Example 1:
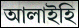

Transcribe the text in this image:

আলাইহি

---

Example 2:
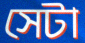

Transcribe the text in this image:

সেটা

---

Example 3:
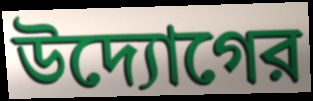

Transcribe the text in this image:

উদ্যোগের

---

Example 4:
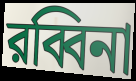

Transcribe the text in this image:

রব্বিনা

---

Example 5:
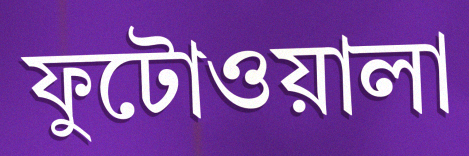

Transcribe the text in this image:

ফুটোওয়ালা